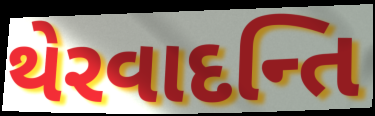
થેરવાદન્તિ